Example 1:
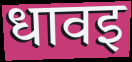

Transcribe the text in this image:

धावइ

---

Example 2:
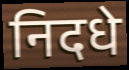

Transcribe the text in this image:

निदधे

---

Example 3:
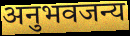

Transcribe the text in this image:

अनुभवजन्य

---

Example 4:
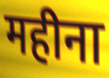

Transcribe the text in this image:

महीना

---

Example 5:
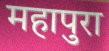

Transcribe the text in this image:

महापुरा